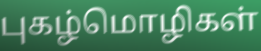
புகழ்மொழிகள்